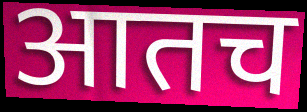
आतच